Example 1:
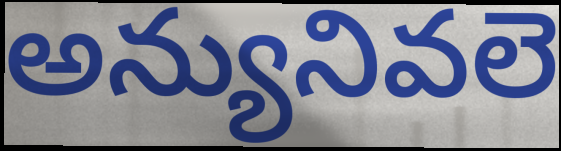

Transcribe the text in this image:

అన్యునివలె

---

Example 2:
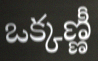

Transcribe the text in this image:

ఒక్కణ్ణీ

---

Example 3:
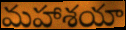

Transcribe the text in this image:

మహాశయా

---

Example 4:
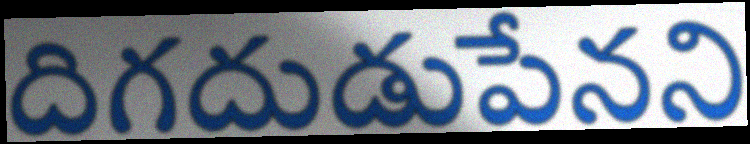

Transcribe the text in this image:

దిగదుడుపేనని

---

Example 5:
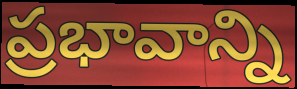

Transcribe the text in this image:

ప్రభావాన్ని